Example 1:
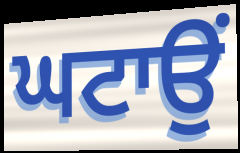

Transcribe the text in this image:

ਘਟਾਉਂ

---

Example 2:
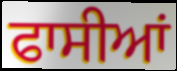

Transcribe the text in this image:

ਫਾਸੀਆਂ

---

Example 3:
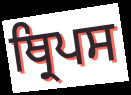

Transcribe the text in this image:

ਥ੍ਰਿਪਸ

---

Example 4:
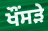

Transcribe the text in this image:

ਖੌਂਸੜੇ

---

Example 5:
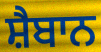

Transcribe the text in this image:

ਸ਼ੈਬਾਨ